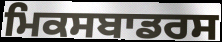
ਮਿਕਸਬਾਡਰਸ